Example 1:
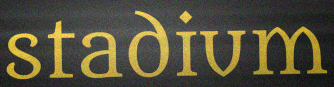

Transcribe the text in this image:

stadium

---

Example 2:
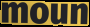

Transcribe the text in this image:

moun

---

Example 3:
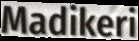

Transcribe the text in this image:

Madikeri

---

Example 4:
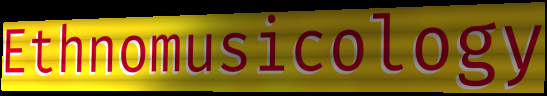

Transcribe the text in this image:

Ethnomusicology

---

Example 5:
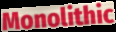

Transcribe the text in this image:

Monolithic